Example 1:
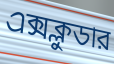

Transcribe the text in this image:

এক্সক্লুডার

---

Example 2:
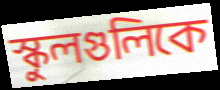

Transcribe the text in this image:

স্কুলগুলিকে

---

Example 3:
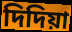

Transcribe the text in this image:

দিদিয়া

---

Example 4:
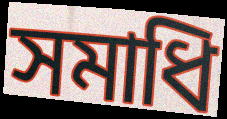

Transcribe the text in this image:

সমাধি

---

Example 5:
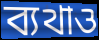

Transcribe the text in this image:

ব্যথাও